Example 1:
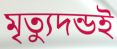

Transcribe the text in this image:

মৃত্যুদন্ডই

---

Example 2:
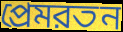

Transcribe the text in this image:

প্রেমরতন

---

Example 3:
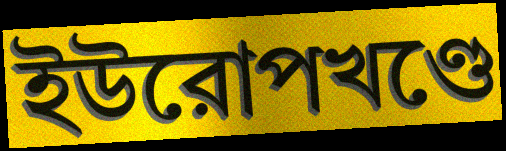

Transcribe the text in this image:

ইউরোপখণ্ডে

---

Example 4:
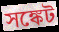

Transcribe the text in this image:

সঙ্কেট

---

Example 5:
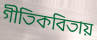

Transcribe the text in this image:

গীতিকবিতায়